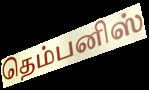
தெம்பனிஸ்